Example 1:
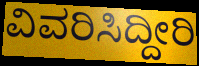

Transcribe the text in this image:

ವಿವರಿಸಿದ್ದೀರಿ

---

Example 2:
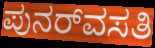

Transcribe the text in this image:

ಪುನರ್‌ವಸತಿ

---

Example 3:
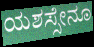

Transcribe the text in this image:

ಯಶಸ್ಸೇನೂ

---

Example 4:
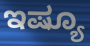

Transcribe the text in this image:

ಇಷ್ಯೂ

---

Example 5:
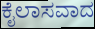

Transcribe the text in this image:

ಕೈಲಾಸವಾದ